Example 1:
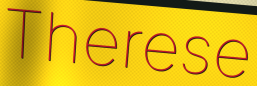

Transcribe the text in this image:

Therese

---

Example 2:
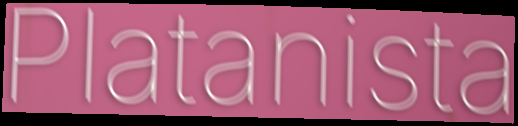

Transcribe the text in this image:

Platanista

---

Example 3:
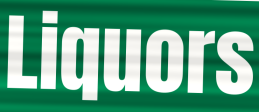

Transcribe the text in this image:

Liquors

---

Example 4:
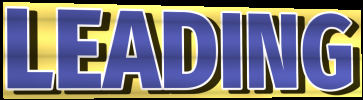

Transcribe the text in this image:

LEADING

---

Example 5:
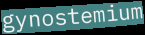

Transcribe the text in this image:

gynostemium